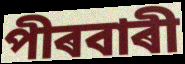
পীৰবাৰী